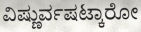
ವಿಷ್ಣುರ್ವಷಟ್ಕಾರೋ